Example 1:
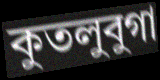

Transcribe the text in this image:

কুতলুবুগা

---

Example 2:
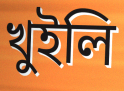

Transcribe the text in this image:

খুইলি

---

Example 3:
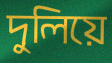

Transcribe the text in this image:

দুলিয়ে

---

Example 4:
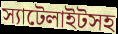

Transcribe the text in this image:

স্যাটেলাইটসহ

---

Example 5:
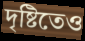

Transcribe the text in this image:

দৃষ্টিতেও